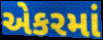
એકરમાં